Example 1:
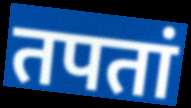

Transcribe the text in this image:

तपतां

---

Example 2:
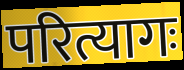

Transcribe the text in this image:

परित्यागः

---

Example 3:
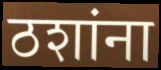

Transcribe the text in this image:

ठशांना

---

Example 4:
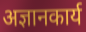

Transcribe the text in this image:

अज्ञानकार्य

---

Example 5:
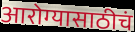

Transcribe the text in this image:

आरोग्यासाठीचं